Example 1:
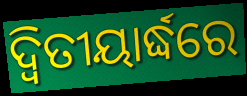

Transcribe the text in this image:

ଦ୍ଵିତୀୟାର୍ଦ୍ଧରେ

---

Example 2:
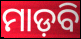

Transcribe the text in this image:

ମାଡ଼ବି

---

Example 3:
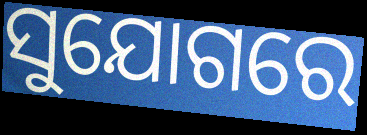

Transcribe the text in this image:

ସୁଯୋଗରେ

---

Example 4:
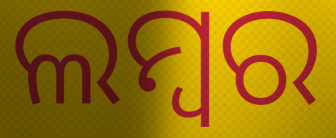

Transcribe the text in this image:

ଲମ୍ବର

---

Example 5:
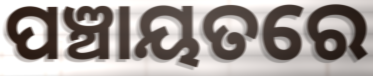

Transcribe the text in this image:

ପଞ୍ଚାୟତରେ